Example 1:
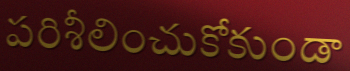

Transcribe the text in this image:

పరిశీలించుకోకుండా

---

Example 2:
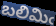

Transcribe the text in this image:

బలిమిఁ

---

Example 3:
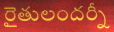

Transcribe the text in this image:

రైతులందర్నీ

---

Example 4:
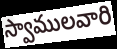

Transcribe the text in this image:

స్వాములవారి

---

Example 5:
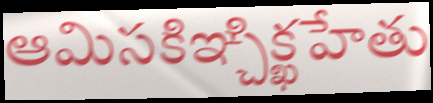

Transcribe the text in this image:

ఆమిసకిఞ్చిక్ఖహేతు